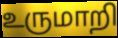
உருமாறி